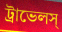
ট্রাভেলস্